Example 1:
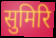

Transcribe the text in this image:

सुमिरि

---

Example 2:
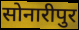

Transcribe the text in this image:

सोनारीपुर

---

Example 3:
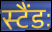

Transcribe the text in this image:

स्टैंडः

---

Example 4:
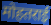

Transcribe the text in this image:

मोहतराई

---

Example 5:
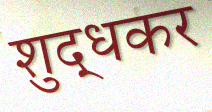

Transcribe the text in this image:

शुद्धकर